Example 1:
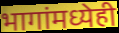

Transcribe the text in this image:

भागांमध्येही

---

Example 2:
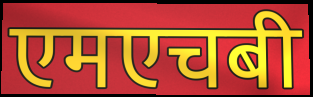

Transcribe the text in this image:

एमएचबी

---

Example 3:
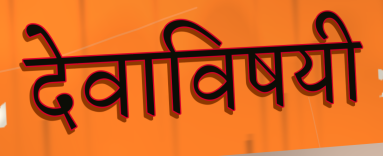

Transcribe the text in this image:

देवाविषयी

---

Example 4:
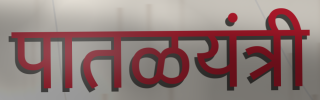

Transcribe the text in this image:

पातळयंत्री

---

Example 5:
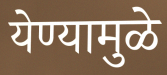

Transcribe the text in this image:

येण्यामुळे